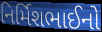
નિર્મિશભાઈનો